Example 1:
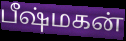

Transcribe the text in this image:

பீஷ்மகன்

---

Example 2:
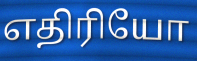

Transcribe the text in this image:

எதிரியோ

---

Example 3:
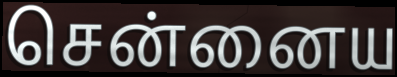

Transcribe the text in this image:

சென்னைய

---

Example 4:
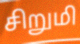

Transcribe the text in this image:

சிறுமி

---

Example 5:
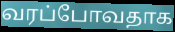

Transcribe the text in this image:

வரப்போவதாக